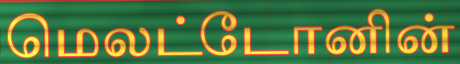
மெலட்டோனின்